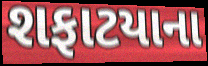
શફાટયાના